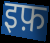
इफ़